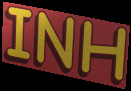
INH